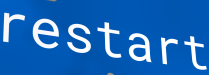
restart